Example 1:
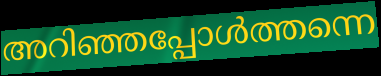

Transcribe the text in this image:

അറിഞ്ഞപ്പോൾത്തന്നെ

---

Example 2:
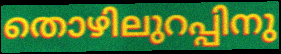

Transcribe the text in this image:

തൊഴിലുറപ്പിനു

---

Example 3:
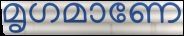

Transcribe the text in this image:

മൃഗമാണേ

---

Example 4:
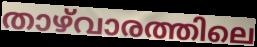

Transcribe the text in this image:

താഴ്‌വാരത്തിലെ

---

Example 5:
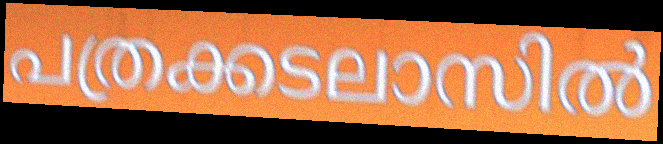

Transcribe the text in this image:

പത്രക്കടലാസിൽ